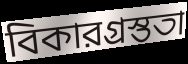
বিকারগ্রস্ততা